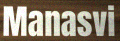
Manasvi